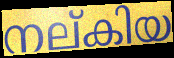
നല്കിയ